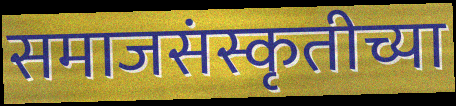
समाजसंस्कृतीच्या